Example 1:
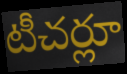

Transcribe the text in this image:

టీచర్లూ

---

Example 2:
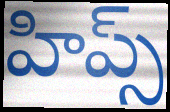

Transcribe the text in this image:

హిప్స్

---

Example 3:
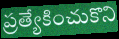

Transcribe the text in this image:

ప్రత్యేకించుకొని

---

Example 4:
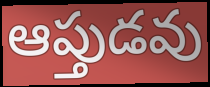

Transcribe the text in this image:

ఆప్తుడవు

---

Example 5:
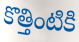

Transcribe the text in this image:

కొత్తింటికి